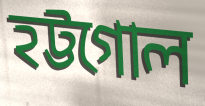
হট্টগোল